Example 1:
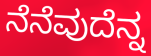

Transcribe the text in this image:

ನೆನೆವುದೆನ್ನ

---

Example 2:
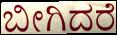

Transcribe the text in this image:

ಬೀಗಿದರೆ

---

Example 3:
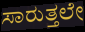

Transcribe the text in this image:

ಸಾರುತ್ತಲೇ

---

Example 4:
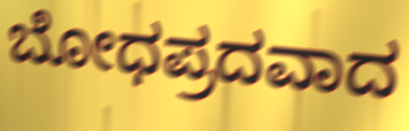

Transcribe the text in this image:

ಬೋಧಪ್ರದವಾದ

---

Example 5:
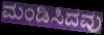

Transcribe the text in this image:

ಮಂಡಿಸಿದವು